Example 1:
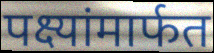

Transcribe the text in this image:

पक्ष्यांमार्फत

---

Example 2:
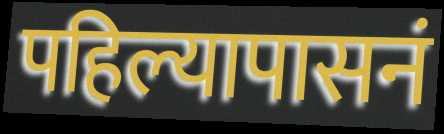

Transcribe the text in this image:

पहिल्यापासनं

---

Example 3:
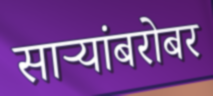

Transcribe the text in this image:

साऱ्यांबरोबर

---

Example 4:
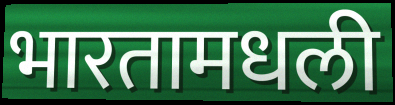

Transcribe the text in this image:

भारतामधली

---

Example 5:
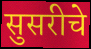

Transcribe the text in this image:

सुसरीचे